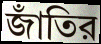
জাঁতির